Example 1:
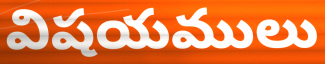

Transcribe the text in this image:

విషయములు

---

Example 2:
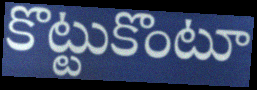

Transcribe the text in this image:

కొట్టుకొంటూ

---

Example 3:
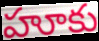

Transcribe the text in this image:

హూకు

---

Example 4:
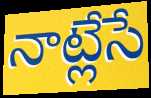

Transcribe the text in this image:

నాట్లేసే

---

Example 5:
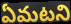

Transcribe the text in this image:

ఏమటని